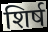
शिर्ष